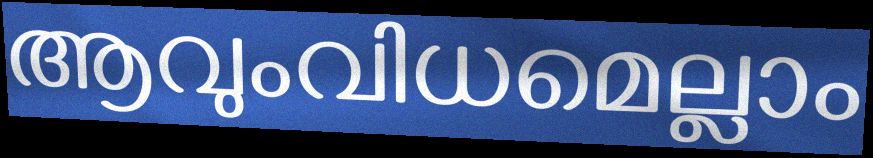
ആവുംവിധമെല്ലാം